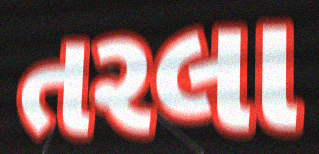
તરલા